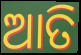
ଆତି